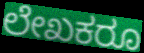
ಲೇಖಕರೂ